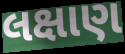
લક્ષાણ